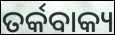
ତର୍କବାକ୍ୟ